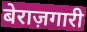
बेराज़गारी